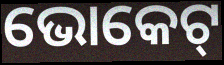
ଭୋକେଟ୍